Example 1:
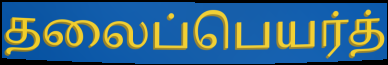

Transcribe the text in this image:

தலைப்பெயர்த்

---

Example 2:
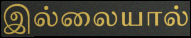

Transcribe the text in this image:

இல்லையால்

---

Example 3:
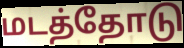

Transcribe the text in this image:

மடத்தோடு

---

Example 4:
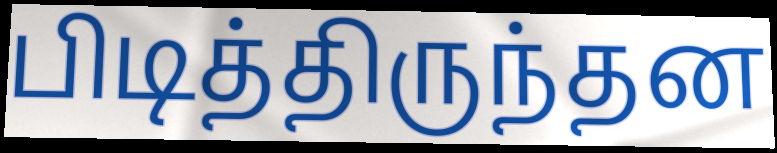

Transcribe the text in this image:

பிடித்திருந்தன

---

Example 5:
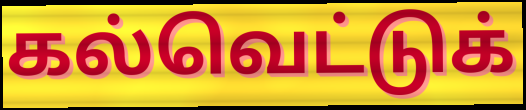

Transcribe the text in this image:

கல்வெட்டுக்